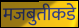
मजबुतीकडे